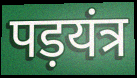
पड़यंत्र